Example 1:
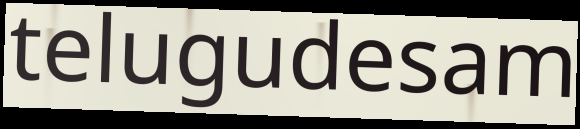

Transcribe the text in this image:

telugudesam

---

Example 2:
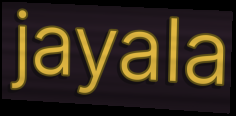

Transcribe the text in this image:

jayala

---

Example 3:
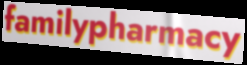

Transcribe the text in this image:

familypharmacy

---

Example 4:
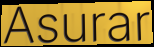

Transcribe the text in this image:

Asurar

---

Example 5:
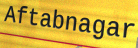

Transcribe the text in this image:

Aftabnagar